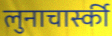
लुनाचार्स्की